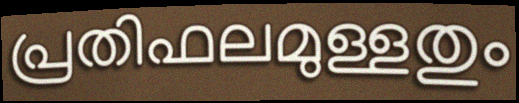
പ്രതിഫലമുള്ളതും